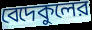
বেদেকুলের